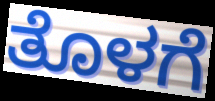
ತೊಳಗೆ